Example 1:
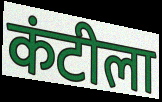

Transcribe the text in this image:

कंटीला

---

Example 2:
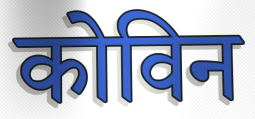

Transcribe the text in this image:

कोविन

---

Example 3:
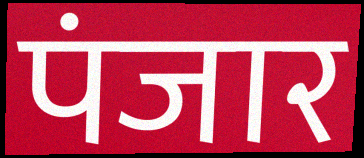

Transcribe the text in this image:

पंजार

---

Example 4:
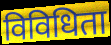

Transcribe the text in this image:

विविधिता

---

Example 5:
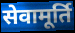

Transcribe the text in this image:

सेवामूर्ति